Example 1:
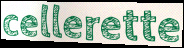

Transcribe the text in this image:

cellerette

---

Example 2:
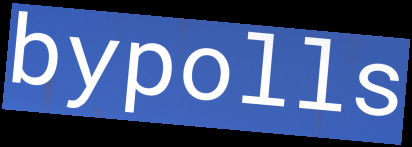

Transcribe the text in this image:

bypolls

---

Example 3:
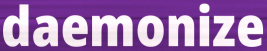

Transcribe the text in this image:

daemonize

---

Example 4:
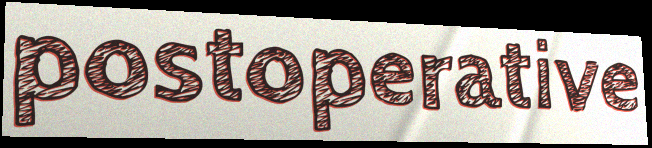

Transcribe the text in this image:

postoperative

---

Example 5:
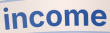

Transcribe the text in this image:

income